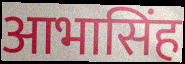
आभासिंह